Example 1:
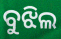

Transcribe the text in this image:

ବୁଝିଲ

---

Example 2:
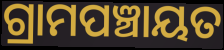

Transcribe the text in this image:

ଗ୍ରାମପଞ୍ଚାୟତ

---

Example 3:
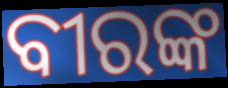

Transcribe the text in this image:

ବୀରଙ୍କ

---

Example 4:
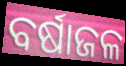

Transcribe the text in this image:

ବର୍ଷାଜଳ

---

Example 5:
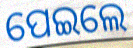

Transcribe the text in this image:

ପେଇଲେ